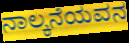
ನಾಲ್ಕನೆಯವನ